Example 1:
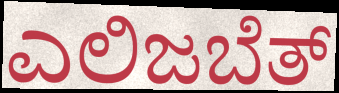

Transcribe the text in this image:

ಎಲಿಜಬೆತ್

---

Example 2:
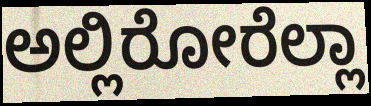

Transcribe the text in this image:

ಅಲ್ಲಿರೋರೆಲ್ಲಾ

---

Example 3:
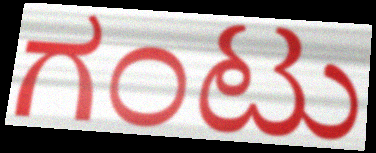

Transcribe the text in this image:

ಗಂಟು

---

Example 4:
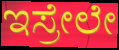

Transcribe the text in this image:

ಇಸ್ರೇಲೇ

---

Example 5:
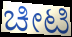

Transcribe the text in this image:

ಚೀಟಿ